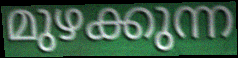
മുഴക്കുന്ന